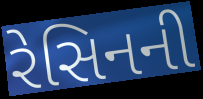
રેસિનની